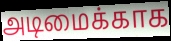
அடிமைக்காக